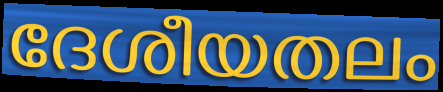
ദേശീയതലം